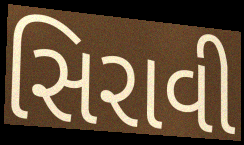
સિરાવી